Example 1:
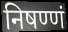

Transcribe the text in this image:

निषण्णं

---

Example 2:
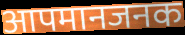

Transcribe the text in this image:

आपमानजनक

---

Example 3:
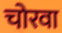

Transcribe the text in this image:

चोरवा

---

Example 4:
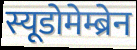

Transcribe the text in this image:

स्यूडोमेम्ब्रेन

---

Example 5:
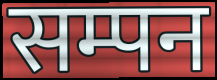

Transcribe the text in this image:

सम्पन